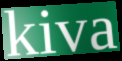
kiva